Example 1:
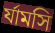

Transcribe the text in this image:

র্যামসি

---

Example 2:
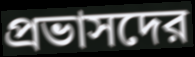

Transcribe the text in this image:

প্রভাসদের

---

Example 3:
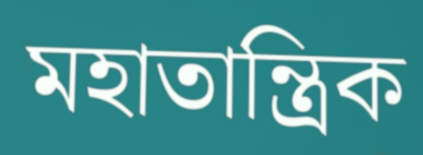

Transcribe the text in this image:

মহাতান্ত্রিক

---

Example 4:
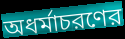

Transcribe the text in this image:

অধর্মাচরণের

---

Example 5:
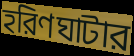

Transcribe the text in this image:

হরিণঘাটার